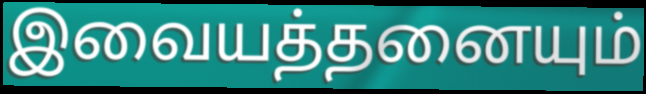
இவையத்தனையும்